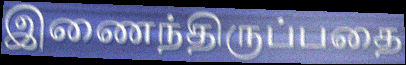
இணைந்திருப்பதை